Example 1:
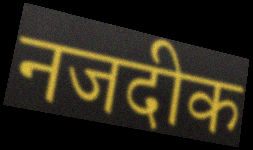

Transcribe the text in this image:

नजदीक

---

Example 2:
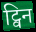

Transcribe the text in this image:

ट्विन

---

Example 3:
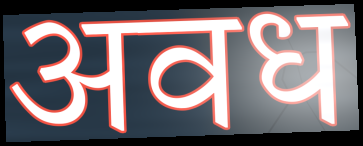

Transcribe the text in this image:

अवध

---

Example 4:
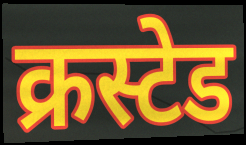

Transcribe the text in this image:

क्रस्टेड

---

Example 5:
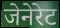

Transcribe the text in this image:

जेनेरेट